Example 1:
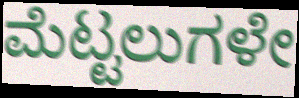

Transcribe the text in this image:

ಮೆಟ್ಟಲುಗಳೇ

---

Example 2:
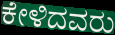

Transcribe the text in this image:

ಕೇಳಿದವರು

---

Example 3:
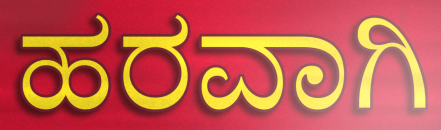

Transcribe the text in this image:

ಹರವಾಗಿ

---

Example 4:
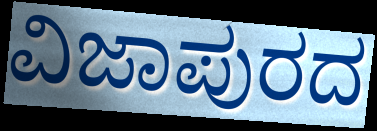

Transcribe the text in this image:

ವಿಜಾಪುರದ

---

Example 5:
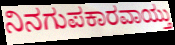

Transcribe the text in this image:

ನಿನಗುಪಕಾರವಾಯ್ತು